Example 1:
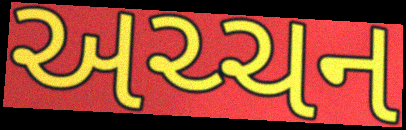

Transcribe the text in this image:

અચ્ચન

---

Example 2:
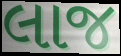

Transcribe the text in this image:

લાજ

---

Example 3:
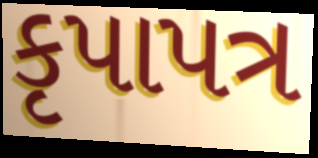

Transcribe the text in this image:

કૃપાપત્ર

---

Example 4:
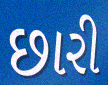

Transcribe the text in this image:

છારી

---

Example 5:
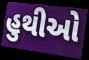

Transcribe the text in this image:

હુથીઓ